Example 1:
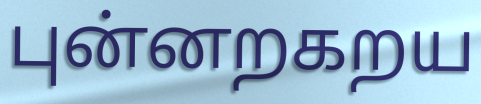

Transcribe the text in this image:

புன்னறகறய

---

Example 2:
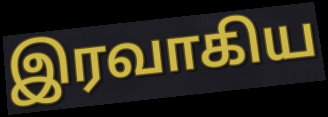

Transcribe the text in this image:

இரவாகிய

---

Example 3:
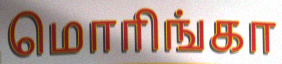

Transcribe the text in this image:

மொரிங்கா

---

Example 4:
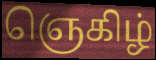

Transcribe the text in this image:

ஞெகிழ்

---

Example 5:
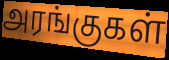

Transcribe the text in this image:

அரங்குகள்